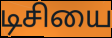
டிசியை